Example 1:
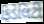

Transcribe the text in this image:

ફિડેલિટી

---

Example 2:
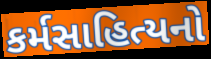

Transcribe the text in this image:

કર્મસાહિત્યનો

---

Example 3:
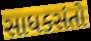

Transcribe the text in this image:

સાધકસંતો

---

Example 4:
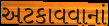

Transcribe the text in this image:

અટકાવવાનાં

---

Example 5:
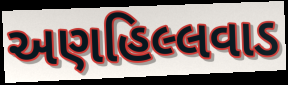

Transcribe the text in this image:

અણહિલ્લવાડ